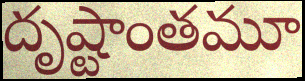
దృష్టాంతమూ